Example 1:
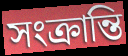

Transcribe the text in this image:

সংক্ৰান্তি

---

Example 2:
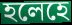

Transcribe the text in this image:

হলেহে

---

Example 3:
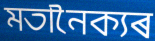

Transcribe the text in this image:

মতানৈক্যৰ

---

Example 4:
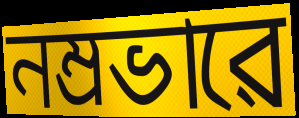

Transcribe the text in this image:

নম্ৰভাৱে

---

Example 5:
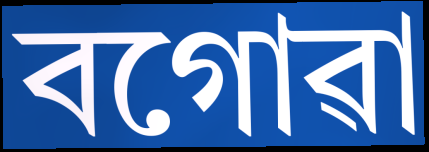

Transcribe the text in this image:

বগোৱা